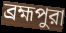
ব্রহ্মপুরা